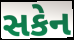
સકેન